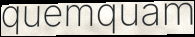
quemquam